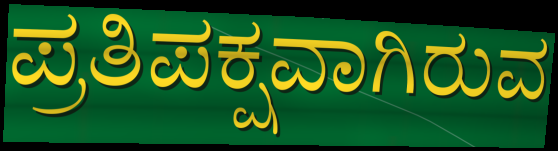
ಪ್ರತಿಪಕ್ಷವಾಗಿರುವ